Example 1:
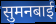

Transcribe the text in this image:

सुमनबाई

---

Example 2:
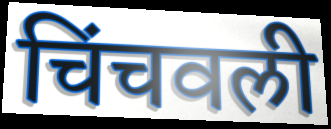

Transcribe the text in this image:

चिंचवली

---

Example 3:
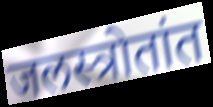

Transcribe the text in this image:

जलस्त्रोतांत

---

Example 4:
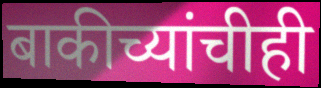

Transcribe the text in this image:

बाकीच्यांचीही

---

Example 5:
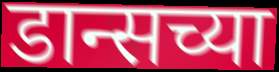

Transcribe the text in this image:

डान्सच्या